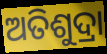
ଅତିଶୁଦ୍ରା